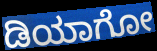
ಡಿಯಾಗೋ